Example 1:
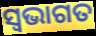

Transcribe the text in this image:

ସ୍ଵଭାଗତ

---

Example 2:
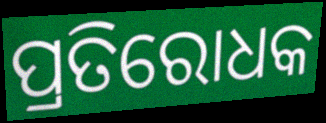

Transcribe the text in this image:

ପ୍ରତିରୋଧକ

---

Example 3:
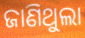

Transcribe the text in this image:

ଜାଣିଥୁଲା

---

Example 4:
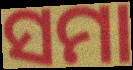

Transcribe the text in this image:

ସମା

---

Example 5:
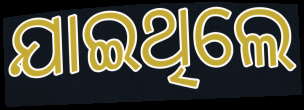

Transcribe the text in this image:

ଯାଇଥିଲେ